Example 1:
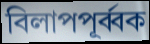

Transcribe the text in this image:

বিলাপপূর্ব্বক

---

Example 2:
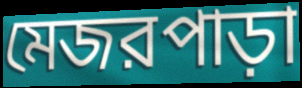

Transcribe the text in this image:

মেজরপাড়া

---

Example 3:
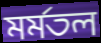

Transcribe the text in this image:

মর্মতল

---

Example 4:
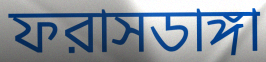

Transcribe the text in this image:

ফরাসডাঙ্গা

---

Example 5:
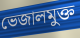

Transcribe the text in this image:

ভেজালমুক্ত